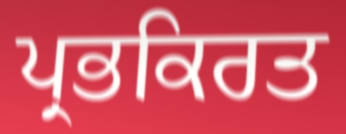
ਪ੍ਰਭਕਿਰਤ